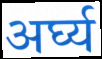
अर्घ्य